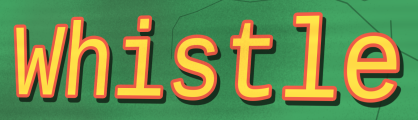
Whistle